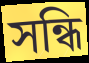
সন্ধি